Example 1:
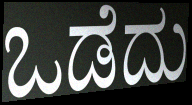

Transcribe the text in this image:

ಒಡೆದು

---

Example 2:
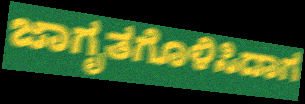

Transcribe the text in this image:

ಜಾಗೃತಗೊಳಿಸಿದಾಗ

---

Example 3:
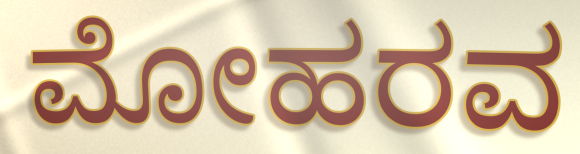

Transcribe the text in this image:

ಮೋಹರವ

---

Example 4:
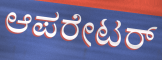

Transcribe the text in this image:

ಆಪರೇಟರ್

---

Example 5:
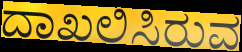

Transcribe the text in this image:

ದಾಖಲಿಸಿರುವ